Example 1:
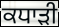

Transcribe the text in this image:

ਕਧਾੜੀ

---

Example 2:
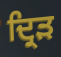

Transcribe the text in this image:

ਦ੍ਰਿਡ਼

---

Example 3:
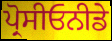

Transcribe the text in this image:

ਪ੍ਰੋਸੀਓਨੀਡੇ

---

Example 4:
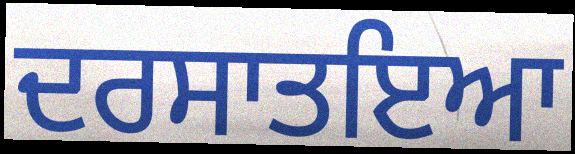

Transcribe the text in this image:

ਦਰਸਾਤਇਆ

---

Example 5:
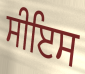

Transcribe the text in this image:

ਸੀਇਸ